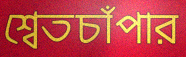
শ্বেতচাঁপার